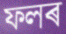
ফলৰ